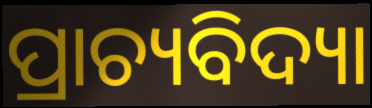
ପ୍ରାଚ୍ୟବିଦ୍ୟା